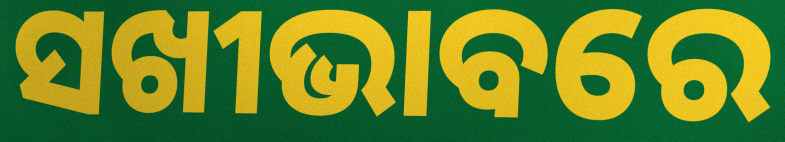
ସଖୀଭାବରେ